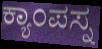
ಕ್ಯಾಂಪಸ್ನ